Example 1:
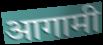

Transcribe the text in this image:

आगामी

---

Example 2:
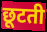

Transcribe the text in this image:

छूटती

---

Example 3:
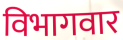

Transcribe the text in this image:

विभागवार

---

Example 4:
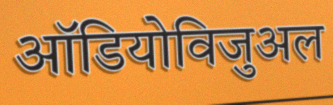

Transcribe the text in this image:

ऑडियोविजुअल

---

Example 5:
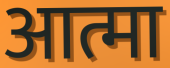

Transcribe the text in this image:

आत्मा